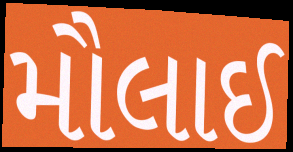
મૌલાઈ